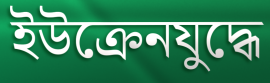
ইউক্রেনযুদ্ধে